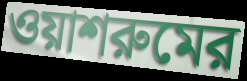
ওয়াশরুমের